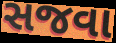
સજવા